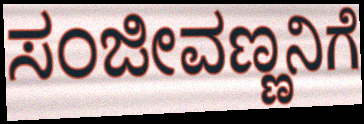
ಸಂಜೀವಣ್ಣನಿಗೆ